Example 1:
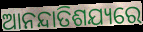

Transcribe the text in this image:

ଆନନ୍ଦାତିଶଯ୍ୟରେ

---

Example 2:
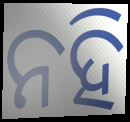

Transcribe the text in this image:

ନହି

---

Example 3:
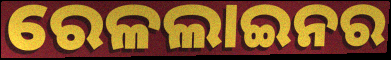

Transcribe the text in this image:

ରେଳଲାଇନର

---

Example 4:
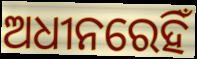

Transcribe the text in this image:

ଅଧୀନରେହିଁ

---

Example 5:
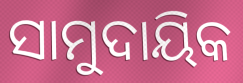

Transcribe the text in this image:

ସାମୁଦାୟିକ